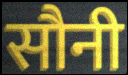
सौनी